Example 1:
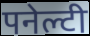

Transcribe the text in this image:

पनेल्टी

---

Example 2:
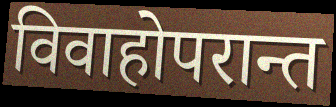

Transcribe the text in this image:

विवाहोपरान्त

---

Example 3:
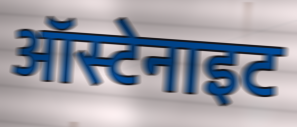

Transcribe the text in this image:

ऑस्टेनाइट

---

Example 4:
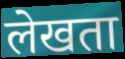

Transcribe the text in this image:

लेखता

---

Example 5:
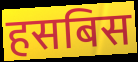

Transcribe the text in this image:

हसबिस